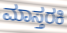
ಮಾಸ್ತರಕಿ